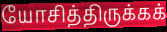
யோசித்திருக்கக்